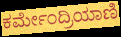
ಕರ್ಮೇಂದ್ರಿಯಾಣಿ